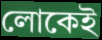
লোকেই